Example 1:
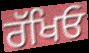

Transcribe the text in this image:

ਰੱਖਿਓ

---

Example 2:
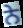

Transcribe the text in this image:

ਨੇ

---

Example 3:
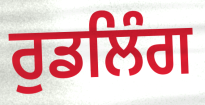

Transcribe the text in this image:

ਰੁਡਲਿੰਗ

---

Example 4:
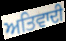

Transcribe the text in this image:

ਅਤਿਵਾਦੀ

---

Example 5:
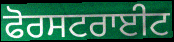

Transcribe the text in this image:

ਫੋਰਸਟਰਾਈਟ